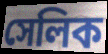
সেলিক